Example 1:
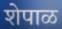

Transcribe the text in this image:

शेपाळ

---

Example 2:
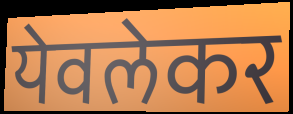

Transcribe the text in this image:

येवलेकर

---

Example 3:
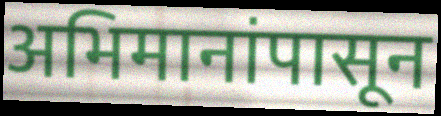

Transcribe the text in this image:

अभिमानांपासून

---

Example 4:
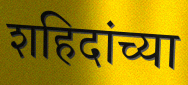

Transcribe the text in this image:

शहिदांच्या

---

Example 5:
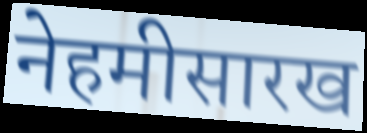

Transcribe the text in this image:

नेहमीसारख